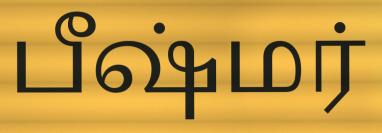
பீஷ்மர்